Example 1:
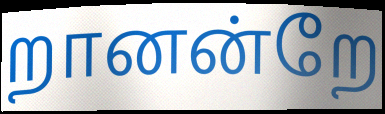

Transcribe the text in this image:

றானன்றே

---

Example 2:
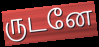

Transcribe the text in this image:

ருடனே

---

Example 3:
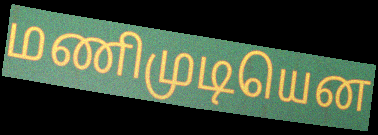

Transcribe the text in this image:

மணிமுடியென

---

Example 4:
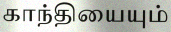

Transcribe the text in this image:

காந்தியையும்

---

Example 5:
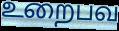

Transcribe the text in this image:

உறைபவ